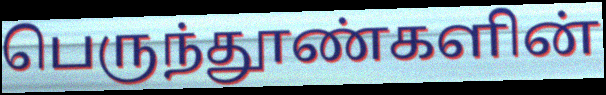
பெருந்தூண்களின்